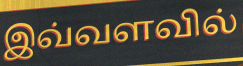
இவ்வளவில்